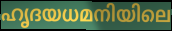
ഹൃദയധമനിയിലെ